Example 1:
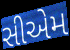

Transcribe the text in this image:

સીએમ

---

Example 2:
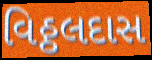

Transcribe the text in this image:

વિઠ્ઠલદાસ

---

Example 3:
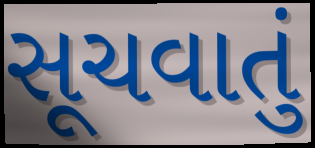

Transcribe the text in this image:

સૂચવાતું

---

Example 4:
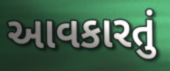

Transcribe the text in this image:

આવકારતું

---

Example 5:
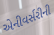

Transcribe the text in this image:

એનીવર્સરીની